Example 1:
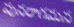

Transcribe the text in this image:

పునరాగమన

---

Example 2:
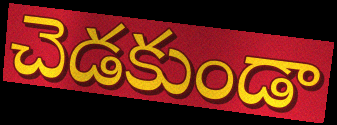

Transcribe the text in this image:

చెడకుండా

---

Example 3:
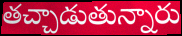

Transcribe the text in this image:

తచ్చాడుతున్నారు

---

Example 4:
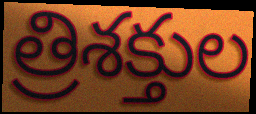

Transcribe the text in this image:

త్రిశక్తుల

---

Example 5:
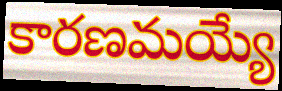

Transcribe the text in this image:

కారణమయ్యే